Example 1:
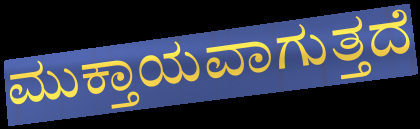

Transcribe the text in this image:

ಮುಕ್ತಾಯವಾಗುತ್ತದೆ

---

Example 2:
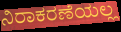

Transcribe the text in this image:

ನಿರಾಕರಣೆಯಲ್ಲ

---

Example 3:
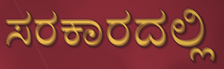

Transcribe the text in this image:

ಸರಕಾರದಲ್ಲಿ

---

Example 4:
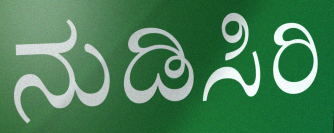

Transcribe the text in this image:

ನುಡಿಸಿರಿ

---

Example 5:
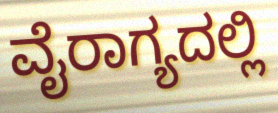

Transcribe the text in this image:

ವೈರಾಗ್ಯದಲ್ಲಿ